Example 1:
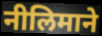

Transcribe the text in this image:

नीलिमाने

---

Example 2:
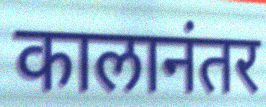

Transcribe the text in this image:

कालानंतर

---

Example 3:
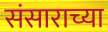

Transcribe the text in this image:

संसाराच्या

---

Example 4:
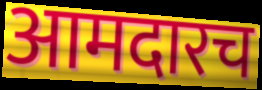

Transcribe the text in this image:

आमदारच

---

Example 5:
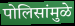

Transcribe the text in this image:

पोलिसांमुळे